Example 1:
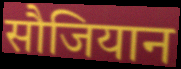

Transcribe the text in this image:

सौजियान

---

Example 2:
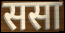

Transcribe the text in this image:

ससा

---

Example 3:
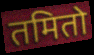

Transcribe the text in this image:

तमितो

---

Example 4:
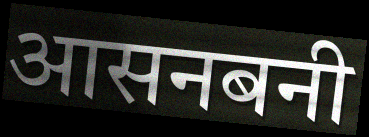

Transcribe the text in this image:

आसनबनी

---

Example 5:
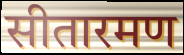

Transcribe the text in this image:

सीतारमण